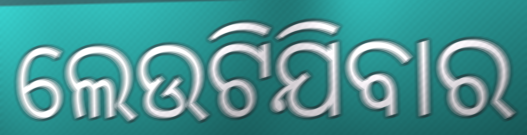
ଲେଉଟିଯିବାର